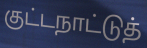
குட்டநாட்டுத்